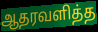
ஆதரவளித்த